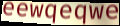
eewqeqwe